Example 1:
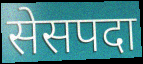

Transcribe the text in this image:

सेसपदा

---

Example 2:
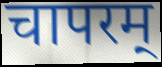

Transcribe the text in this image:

चापरम्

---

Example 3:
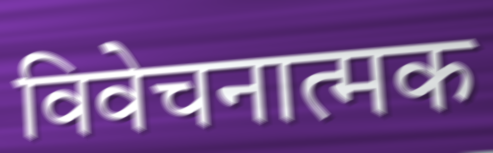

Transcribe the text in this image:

विवेचनात्‍मक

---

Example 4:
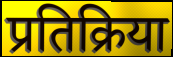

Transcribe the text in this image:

प्रतिक्रिया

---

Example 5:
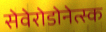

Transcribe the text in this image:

सेवेरोडोनेत्स्क